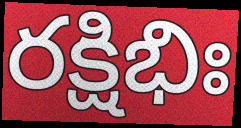
రక్షిభిః